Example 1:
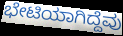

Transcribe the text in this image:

ಭೇಟಿಯಾಗಿದ್ದೆವು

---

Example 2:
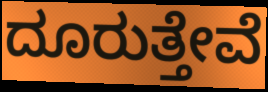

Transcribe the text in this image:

ದೂರುತ್ತೇವೆ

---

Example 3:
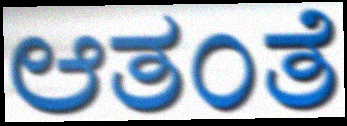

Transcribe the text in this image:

ಆತಂತೆ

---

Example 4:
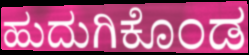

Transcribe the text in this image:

ಹುದುಗಿಕೊಂಡ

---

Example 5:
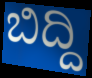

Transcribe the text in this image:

ಬಿದ್ದಿ